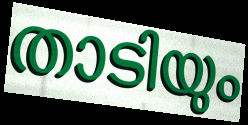
താടിയും